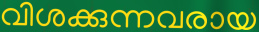
വിശക്കുന്നവരായ